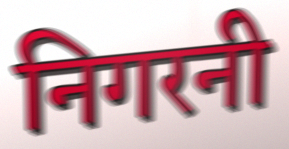
निगरनी